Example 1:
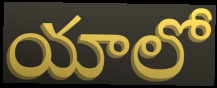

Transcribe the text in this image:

యాలో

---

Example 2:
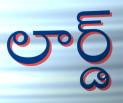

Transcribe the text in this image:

లార్డ్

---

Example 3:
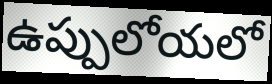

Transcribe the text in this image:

ఉప్పులోయలో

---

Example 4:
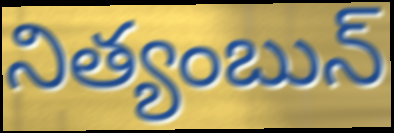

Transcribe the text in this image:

నిత్యంబున్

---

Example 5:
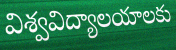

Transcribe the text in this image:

విశ్వవిద్యాలయాలకు